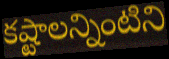
కష్టాలన్నింటిని